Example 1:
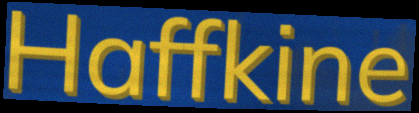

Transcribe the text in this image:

Haffkine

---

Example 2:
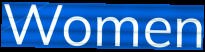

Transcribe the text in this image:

Women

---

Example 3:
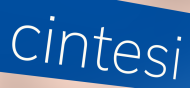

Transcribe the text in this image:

cintesi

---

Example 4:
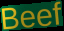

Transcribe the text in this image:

Beef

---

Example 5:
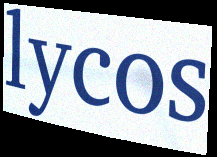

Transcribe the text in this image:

lycos